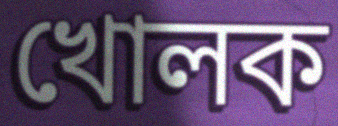
খোলক